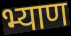
भ्याण